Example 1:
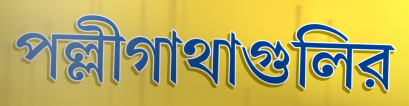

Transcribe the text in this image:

পল্লীগাথাগুলির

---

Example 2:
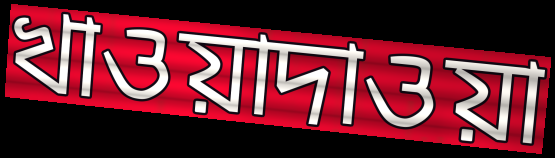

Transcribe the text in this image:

খাওয়াদাওয়া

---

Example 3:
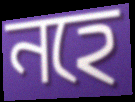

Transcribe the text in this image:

নহে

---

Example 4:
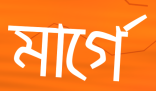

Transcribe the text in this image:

মার্গে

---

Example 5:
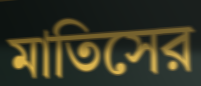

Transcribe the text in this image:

মাতিসের